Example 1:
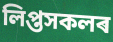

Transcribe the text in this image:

লিপ্তসকলৰ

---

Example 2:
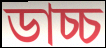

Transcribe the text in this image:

ডাচ্চ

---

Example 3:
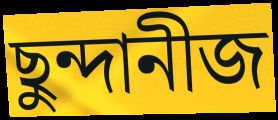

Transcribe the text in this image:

ছুন্দানীজ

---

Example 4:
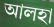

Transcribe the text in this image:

আলহা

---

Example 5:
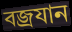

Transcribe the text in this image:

বজ্ৰযান